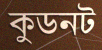
কুডনট